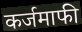
कर्जमाफी